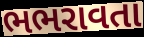
ભભરાવતા